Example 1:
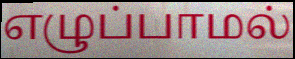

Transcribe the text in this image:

எழுப்பாமல்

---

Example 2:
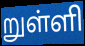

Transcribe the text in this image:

றுள்ளி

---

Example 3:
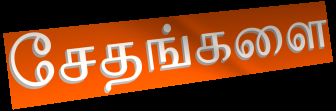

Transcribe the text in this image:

சேதங்களை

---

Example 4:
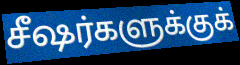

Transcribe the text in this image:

சீஷர்களுக்குக்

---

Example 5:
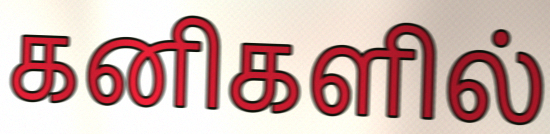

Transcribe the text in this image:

கனிகளில்